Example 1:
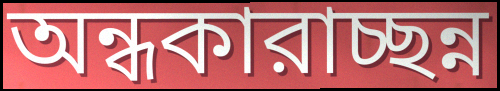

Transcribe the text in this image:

অন্ধকারাচ্ছন্ন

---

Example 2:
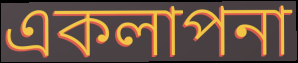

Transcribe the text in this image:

একলাপনা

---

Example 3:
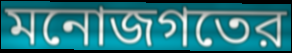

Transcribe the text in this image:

মনোজগতের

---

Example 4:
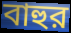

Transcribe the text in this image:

বাহুর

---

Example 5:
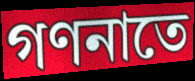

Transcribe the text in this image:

গণনাতে